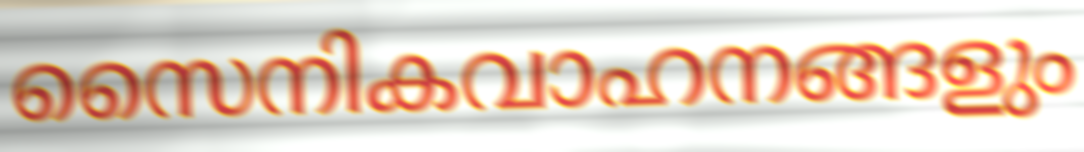
സൈനികവാഹനങ്ങളും